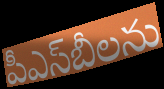
పీఎస్‌బీలను